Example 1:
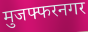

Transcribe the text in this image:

मुजफ्फरनगर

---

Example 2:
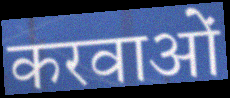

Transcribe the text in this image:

करवाओं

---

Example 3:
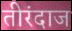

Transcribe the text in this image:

तीरंदाज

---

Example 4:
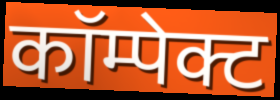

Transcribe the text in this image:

कॉम्पेक्ट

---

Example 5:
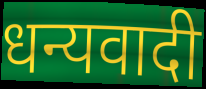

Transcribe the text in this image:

धन्यवादी